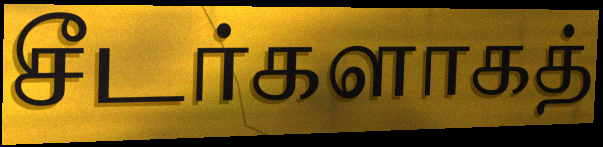
சீடர்களாகத்